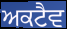
ਅਕਟੈਵ